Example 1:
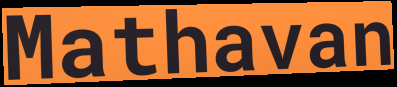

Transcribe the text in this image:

Mathavan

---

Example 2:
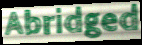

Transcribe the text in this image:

Abridged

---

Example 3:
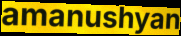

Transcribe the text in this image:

amanushyan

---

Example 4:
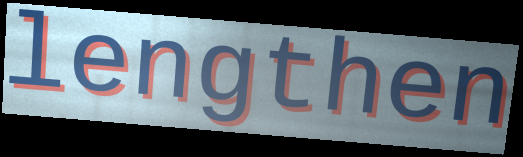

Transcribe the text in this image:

lengthen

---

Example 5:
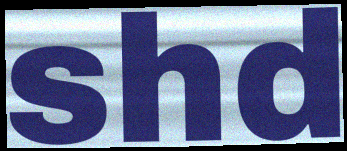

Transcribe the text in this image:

shd